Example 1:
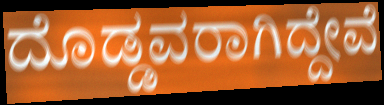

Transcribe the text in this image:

ದೊಡ್ಡವರಾಗಿದ್ದೇವೆ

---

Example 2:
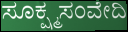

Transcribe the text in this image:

ಸೂಕ್ಷ್ಮಸಂವೇದಿ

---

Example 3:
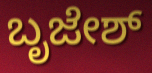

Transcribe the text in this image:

ಬೃಜೇಶ್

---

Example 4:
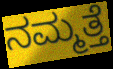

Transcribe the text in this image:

ನಮ್ಮತ್ತೆ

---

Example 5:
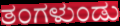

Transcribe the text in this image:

ತಂಗಳುಂಡು